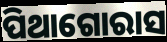
ପିଥାଗୋରାସ